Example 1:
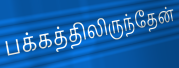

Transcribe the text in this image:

பக்கத்திலிருந்தேன்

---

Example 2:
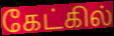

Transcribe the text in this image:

கேட்கில்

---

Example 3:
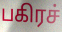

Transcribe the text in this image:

பகிரச்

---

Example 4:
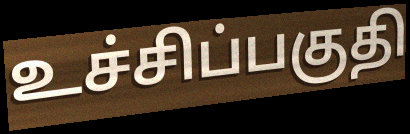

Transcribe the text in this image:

உச்சிப்பகுதி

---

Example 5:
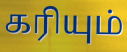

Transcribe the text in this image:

கரியும்